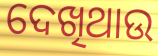
ଦେଖିଥାଉ